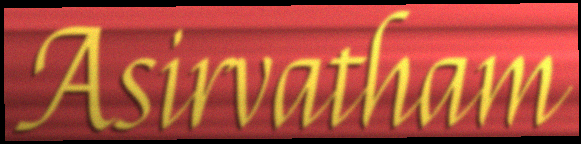
Asirvatham